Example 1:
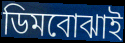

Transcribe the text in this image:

ডিমবোঝাই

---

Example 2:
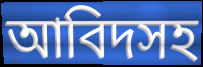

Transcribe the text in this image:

আবিদসহ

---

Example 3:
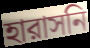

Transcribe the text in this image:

হারাসনি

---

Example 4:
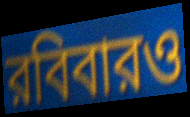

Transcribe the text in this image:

রবিবারও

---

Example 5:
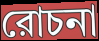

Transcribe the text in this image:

রোচনা